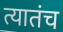
त्यातंच